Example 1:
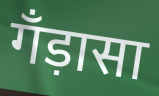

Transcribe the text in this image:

गँड़ासा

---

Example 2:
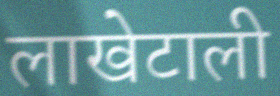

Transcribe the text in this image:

लाखेटाली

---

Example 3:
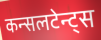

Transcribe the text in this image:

कन्सलटेन्ट्स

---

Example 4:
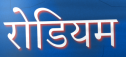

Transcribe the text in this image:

रोडियम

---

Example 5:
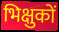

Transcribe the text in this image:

भिक्षुकों